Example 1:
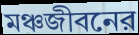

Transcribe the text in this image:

মঞ্চজীবনের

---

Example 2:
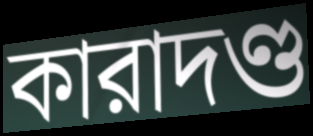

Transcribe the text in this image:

কারাদণ্ড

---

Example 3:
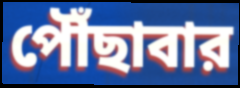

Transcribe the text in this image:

পৌঁছাবার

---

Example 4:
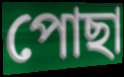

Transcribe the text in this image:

পোছা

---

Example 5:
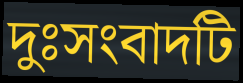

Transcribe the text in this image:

দুঃসংবাদটি